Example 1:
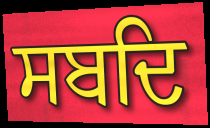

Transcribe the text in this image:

ਸਬਦਿ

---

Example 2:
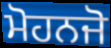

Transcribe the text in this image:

ਮੋਹਨਜੋ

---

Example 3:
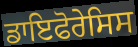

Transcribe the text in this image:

ਡਾਇਫੋਰੇਸਿਸ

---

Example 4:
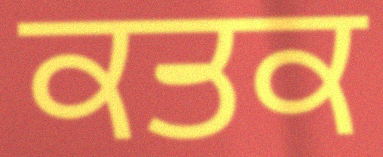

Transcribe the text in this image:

ਕਤਕ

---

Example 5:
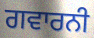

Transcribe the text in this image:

ਗਵਾਰਨੀ